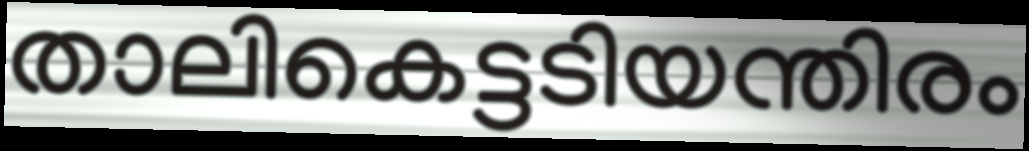
താലികെട്ടടിയന്തിരം